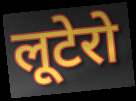
लूटेरो